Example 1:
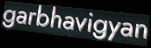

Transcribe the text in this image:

garbhavigyan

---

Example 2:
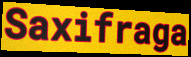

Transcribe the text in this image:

Saxifraga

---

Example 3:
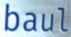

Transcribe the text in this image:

baul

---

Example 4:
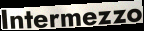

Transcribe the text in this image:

Intermezzo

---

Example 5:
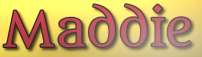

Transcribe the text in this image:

Maddie